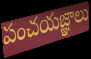
పంచయజ్ఞాలు